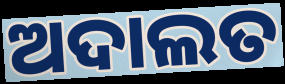
ଅଦାଲତ